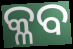
କ୍ଳବ